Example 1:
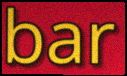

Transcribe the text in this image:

bar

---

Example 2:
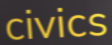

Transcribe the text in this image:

civics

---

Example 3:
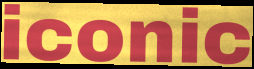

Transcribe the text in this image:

iconic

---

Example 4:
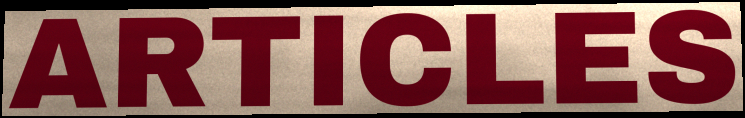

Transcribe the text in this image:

ARTICLES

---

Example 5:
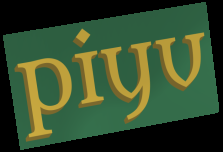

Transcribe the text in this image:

piyu